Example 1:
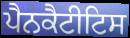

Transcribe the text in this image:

ਪੈਨਕੈਟੀਟਿਸ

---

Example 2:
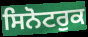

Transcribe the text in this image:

ਸਿਨੋਟਰੁਕ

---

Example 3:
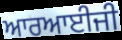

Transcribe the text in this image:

ਆਰਆਈਜੀ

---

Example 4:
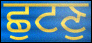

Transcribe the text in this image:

ਛੁਟਣੁ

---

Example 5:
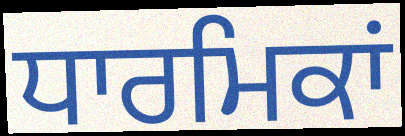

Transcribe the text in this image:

ਧਾਰਮਿਕਾਂ